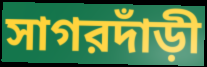
সাগরদাঁড়ী